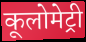
कूलोमेट्री